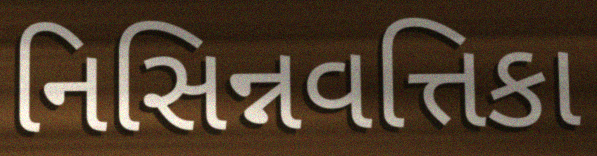
નિસિન્નવત્તિકા